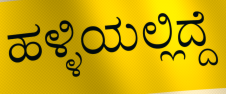
ಹಳ್ಳಿಯಲ್ಲಿದ್ದೆ